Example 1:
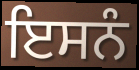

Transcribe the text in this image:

ਇਸਨੰ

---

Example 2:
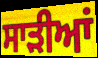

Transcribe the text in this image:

ਸਾਡ਼ੀਆਂ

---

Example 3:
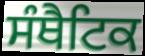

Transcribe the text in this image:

ਸੰਥੈਟਿਕ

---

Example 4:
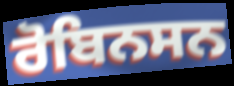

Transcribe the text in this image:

ਰੋਬਿਨਸਨ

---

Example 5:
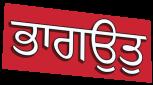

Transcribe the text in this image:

ਭਾਗਉਤੁ